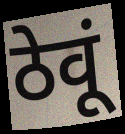
ठेवूं